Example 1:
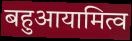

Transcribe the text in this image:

बहुआयामित्व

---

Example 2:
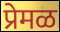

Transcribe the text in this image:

प्रेमळ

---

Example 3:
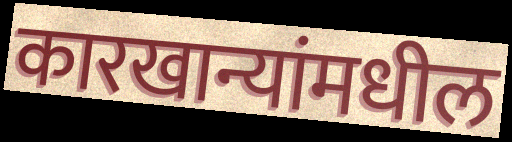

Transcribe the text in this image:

कारखान्यांमधील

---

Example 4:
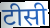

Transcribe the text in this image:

टीसी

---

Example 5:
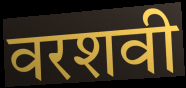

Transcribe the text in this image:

वरशवी